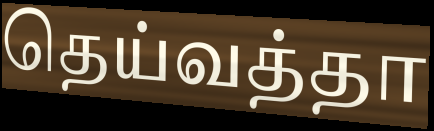
தெய்வத்தா